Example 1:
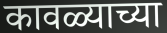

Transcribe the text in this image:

कावळ्याच्या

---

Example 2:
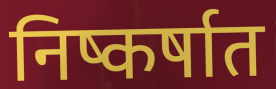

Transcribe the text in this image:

निष्कर्षात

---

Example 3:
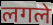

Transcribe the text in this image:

लगले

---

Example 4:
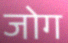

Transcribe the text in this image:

जोग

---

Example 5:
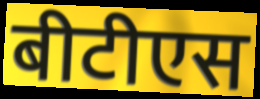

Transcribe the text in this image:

बीटीएस